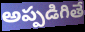
అప్పడిగితే